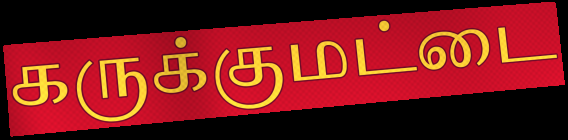
கருக்குமட்டை